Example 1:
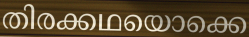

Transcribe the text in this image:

തിരക്കഥയൊക്കെ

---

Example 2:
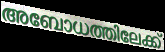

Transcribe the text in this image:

അബോധത്തിലേക്ക്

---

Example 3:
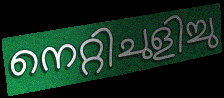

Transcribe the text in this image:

നെറ്റിചുളിച്ചു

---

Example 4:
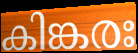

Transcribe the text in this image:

കിങ്കരഃ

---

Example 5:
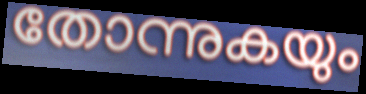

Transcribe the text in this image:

തോന്നുകയും